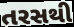
તરસથી